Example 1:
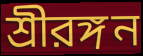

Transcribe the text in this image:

শ্রীরঙ্গন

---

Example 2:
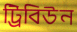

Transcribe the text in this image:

ট্রিবিউন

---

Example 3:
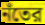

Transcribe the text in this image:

নঁতের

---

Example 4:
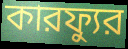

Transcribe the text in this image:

কারফ্যুর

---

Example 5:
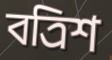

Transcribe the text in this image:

বত্রিশ